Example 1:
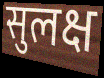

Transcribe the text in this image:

सुलक्ष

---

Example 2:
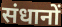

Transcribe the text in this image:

संधानों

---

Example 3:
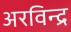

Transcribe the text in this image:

अरविन्द्र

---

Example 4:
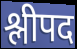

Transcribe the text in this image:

श्लीपद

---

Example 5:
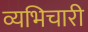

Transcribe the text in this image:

व्यभिचारी